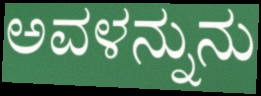
ಅವಳನ್ನುನು